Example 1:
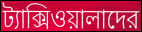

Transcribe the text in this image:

ট্যাক্সিওয়ালাদের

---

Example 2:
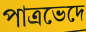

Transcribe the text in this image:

পাত্রভেদে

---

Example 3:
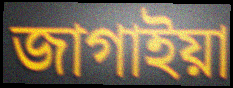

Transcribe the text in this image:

জাগাইয়া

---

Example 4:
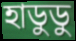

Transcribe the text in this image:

হাডুডু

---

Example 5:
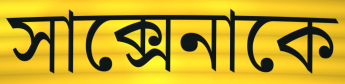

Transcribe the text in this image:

সাক্সেনাকে